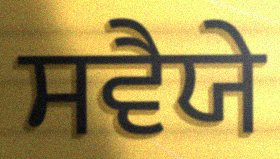
ਸਵੈਯੇ